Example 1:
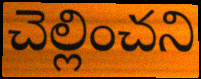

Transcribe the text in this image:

చెల్లించని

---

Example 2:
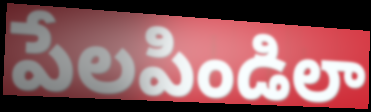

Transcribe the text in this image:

పేలపిండిలా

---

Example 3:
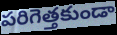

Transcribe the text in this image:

పరిగెత్తకుండా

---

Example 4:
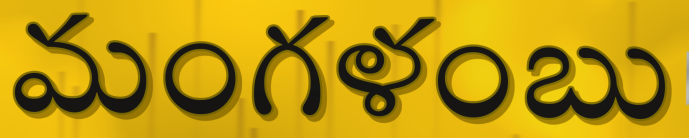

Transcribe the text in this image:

మంగళంబు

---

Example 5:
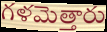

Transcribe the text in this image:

గళమెత్తారు